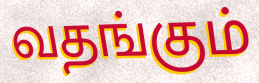
வதங்கும்